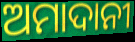
ଅମାଦାନୀ